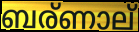
ബര്ണാല്